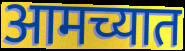
आमच्यात